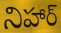
నిహార్